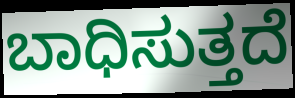
ಬಾಧಿಸುತ್ತದೆ